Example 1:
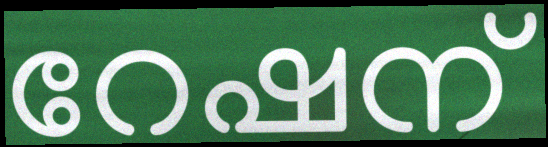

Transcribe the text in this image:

റേഷന്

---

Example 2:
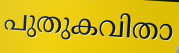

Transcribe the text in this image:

പുതുകവിതാ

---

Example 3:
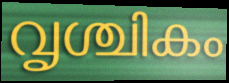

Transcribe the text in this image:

വൃശ്ചികം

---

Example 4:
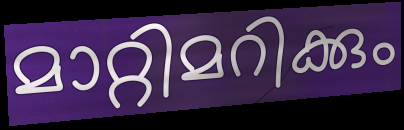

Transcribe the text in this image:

മാറ്റിമറിക്കും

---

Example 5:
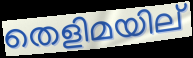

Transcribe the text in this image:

തെളിമയില്